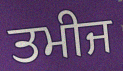
ਤਮੀਜ